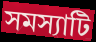
সমস্যাটি